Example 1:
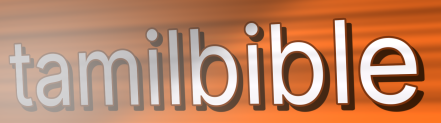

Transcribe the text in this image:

tamilbible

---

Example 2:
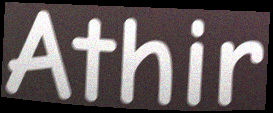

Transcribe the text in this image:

Athir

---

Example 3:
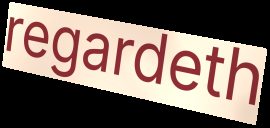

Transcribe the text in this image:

regardeth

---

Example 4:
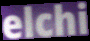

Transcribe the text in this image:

elchi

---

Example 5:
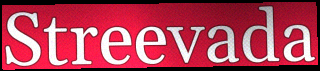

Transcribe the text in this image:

Streevada